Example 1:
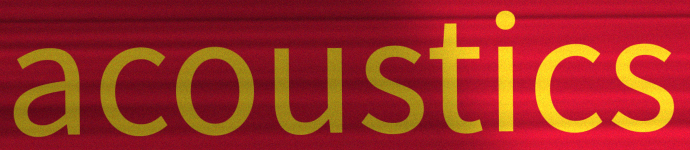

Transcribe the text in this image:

acoustics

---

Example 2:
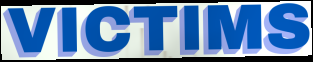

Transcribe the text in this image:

VICTIMS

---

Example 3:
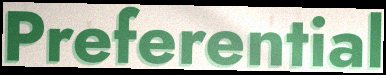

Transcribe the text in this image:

Preferential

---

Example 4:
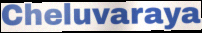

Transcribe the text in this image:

Cheluvaraya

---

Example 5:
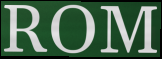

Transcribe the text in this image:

ROM